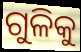
ଗୁଳିକୁ